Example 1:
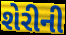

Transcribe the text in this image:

શેરીની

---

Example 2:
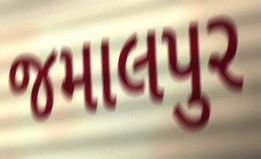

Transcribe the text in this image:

જમાલપુર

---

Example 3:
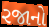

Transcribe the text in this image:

રજાનો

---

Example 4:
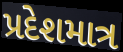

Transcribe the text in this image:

પ્રદેશમાત્ર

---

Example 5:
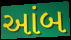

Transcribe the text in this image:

આંબ